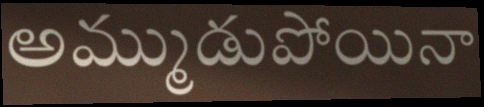
అమ్ముడుపోయినా